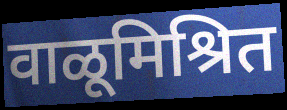
वाळूमिश्रित